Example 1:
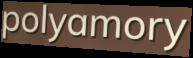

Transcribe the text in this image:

polyamory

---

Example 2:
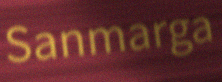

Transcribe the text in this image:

Sanmarga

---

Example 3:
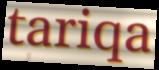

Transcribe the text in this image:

tariqa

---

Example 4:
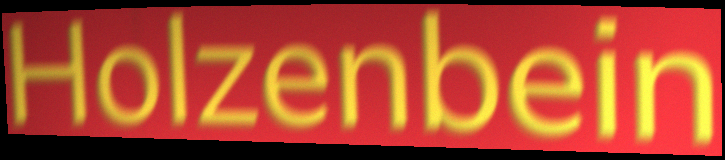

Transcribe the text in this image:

Holzenbein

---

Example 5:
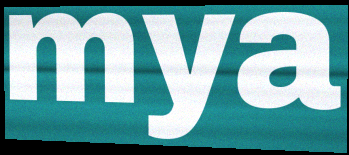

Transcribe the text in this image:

mya